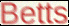
Betts